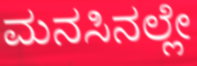
ಮನಸಿನಲ್ಲೇ